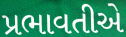
પ્રભાવતીએ